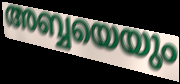
അബ്ബയെയും